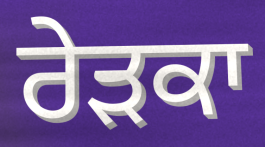
ਰੇੜਕਾ